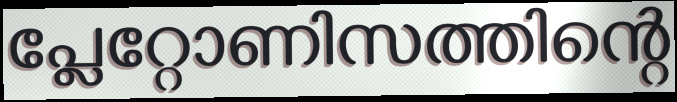
പ്ലേറ്റോണിസത്തിന്റെ